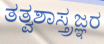
ತತ್ವಶಾಸ್ತ್ರಜ್ಞರ